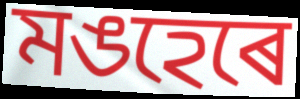
মঙহেৰে